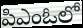
పిఎంఓలో